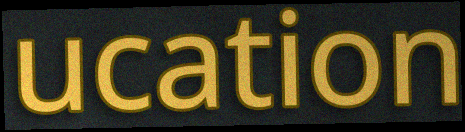
ucation